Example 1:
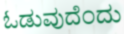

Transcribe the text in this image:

ಓಡುವುದೆಂದು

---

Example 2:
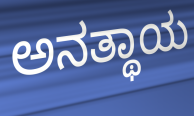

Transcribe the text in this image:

ಅನತ್ಥಾಯ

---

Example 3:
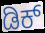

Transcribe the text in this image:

ಡಿಕ್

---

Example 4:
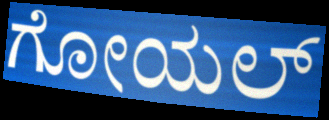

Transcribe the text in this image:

ಗೋಯಲ್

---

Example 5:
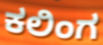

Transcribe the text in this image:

ಕಲಿಂಗ